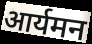
आर्यमन